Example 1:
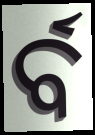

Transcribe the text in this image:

ର୍ବ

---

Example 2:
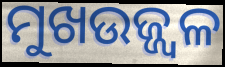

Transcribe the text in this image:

ମୁଖଉଜ୍ଜ୍ୱଳ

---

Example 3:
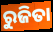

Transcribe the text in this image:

ରୁଜିତା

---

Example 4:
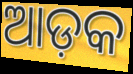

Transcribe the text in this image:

ଆଡ଼କ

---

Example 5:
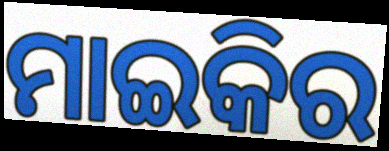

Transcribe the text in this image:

ମାଇକିର